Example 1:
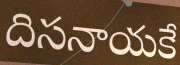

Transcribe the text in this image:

దిసనాయకే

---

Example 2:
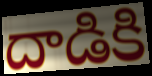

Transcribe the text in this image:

దాడికి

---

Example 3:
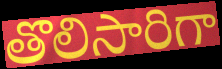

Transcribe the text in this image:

తొలిసారిగా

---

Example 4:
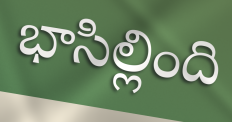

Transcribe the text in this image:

భాసిల్లింది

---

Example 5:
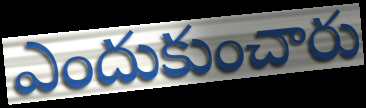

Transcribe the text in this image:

ఎందుకుంచారు